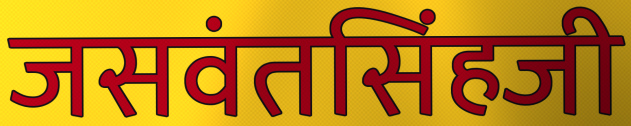
जसवंतसिंहजी